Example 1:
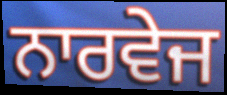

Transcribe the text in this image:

ਨਾਰਵੇਜ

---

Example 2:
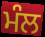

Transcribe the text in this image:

ਮੰਲ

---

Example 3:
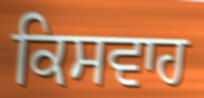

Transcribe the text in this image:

ਕਿਸਵਾਹ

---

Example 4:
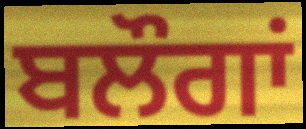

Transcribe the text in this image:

ਬਲੌਗਾਂ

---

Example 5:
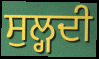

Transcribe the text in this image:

ਸੁਲ੍ਗਦੀ